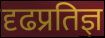
दृढप्रतिज्ञ